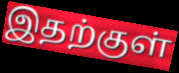
இதற்குள்